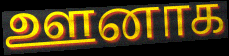
ஊனாக